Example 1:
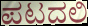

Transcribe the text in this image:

ಪಟದಲಿ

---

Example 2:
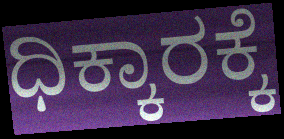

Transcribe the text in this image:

ಧಿಕ್ಕಾರಕ್ಕೆ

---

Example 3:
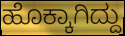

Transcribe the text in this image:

ಹೊಕ್ಕಾಗಿದ್ದು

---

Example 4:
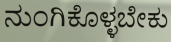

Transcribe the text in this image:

ನುಂಗಿಕೊಳ್ಳಬೇಕು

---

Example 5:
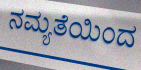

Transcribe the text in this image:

ನಮ್ಯತೆಯಿಂದ